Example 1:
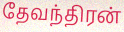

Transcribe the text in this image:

தேவந்திரன்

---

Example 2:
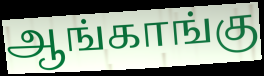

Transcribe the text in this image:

ஆங்காங்கு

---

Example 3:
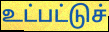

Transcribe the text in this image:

உட்பட்டுச்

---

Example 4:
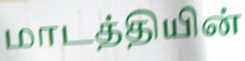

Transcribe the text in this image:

மாடத்தியின்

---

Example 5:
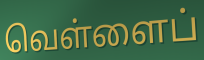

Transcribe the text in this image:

வெள்ளைப்